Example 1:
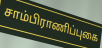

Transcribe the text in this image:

சாம்பிராணிப்புகை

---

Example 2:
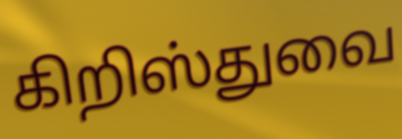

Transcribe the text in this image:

கிறிஸ்துவை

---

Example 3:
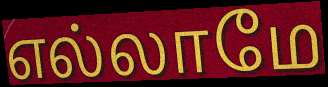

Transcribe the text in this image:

எல்லாமே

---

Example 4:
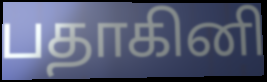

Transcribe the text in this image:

பதாகினி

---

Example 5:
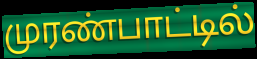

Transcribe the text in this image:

முரண்பாட்டில்